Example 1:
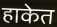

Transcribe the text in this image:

हाकेत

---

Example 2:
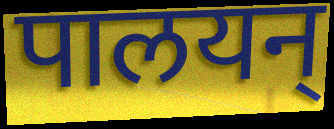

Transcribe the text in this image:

पालयन्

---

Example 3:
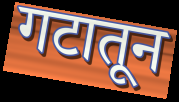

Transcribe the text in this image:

गटातून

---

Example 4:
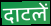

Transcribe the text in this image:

दाटलें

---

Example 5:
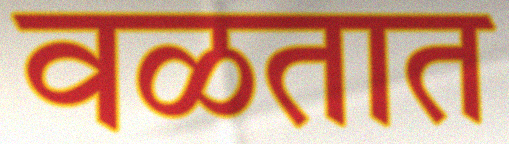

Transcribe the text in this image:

वळतात